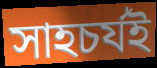
সাহচর্যই